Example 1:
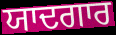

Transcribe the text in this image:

ਯਾਦਗਾਰ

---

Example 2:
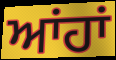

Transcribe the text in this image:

ਆਂਹਾਂ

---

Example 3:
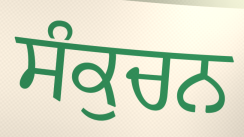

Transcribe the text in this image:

ਸੰਕੁਚਨ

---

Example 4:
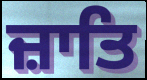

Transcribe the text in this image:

ਜ਼ਾਤਿ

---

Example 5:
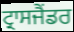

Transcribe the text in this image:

ਟ੍ਰਾਸਜੈਂਡਰ